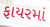
ફાયરમાં